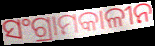
ସଂଗ୍ରାମକାଳୀନ